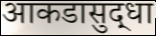
आकडासुद्धा